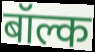
बॉल्क